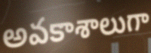
అవకాశాలుగా